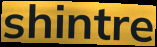
shintre